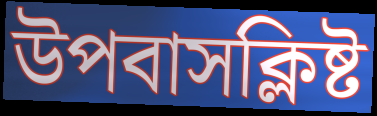
উপবাসক্লিষ্ট